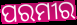
ପରମୀର